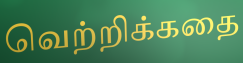
வெற்றிக்கதை